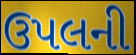
ઉપલની